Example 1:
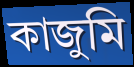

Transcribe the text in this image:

কাজুমি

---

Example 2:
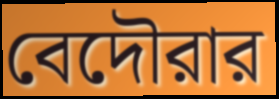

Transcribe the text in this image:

বেদৌরার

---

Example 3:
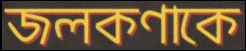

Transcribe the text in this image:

জলকণাকে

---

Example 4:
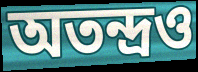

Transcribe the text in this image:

অতন্দ্রও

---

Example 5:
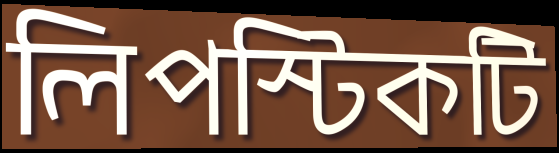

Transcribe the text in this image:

লিপস্টিকটি